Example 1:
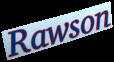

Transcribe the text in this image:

Rawson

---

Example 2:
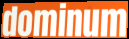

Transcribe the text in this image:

dominum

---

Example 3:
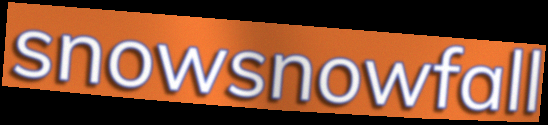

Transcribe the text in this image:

snowsnowfall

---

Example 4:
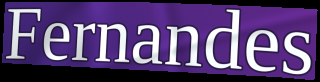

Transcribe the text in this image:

Fernandes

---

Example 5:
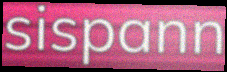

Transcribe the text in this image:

sispann